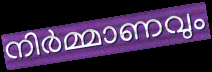
നിർമ്മാണവും